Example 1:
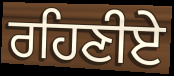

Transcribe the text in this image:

ਰਹਿਣੀਏ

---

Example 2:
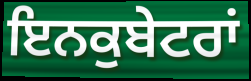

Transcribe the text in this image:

ਇਨਕੁਬੇਟਰਾਂ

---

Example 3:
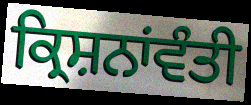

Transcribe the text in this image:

ਕ੍ਰਿਸ਼ਨਾਂਵੰਤੀ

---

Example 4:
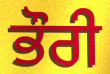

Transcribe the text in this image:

ਭੌਰੀ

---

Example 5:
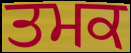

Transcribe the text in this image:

ਤਮਕ